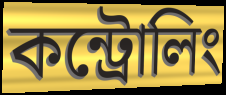
কন্ট্রোলিং